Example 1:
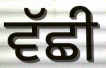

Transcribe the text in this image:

ਵੱਛੀ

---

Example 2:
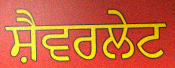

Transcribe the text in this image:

ਸ਼ੈਵਰਲੇਟ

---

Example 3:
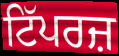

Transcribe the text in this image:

ਟਿੱਪਰਜ਼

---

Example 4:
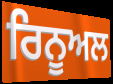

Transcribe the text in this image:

ਰਿਨੂਅਲ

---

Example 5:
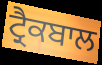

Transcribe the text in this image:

ਟ੍ਰੈਕਬਾਲ